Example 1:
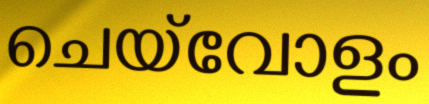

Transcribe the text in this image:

ചെയ്‌വോളം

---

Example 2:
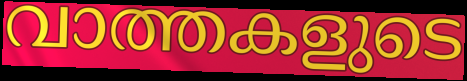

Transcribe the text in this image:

വാത്തകളുടെ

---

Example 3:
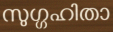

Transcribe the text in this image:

സുഗ്ഗഹിതാ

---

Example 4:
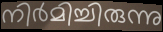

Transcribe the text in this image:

നിർമിച്ചിരുന്നു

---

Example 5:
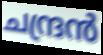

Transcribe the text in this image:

ചന്ദ്രൻ